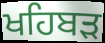
ਖਹਿਬੜ